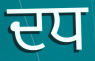
ਦਧ